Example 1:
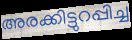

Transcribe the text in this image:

അരക്കിട്ടുറപ്പിച്ച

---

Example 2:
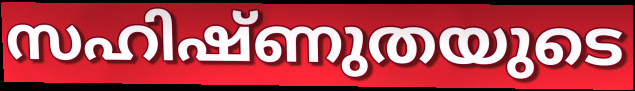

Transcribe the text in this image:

സഹിഷ്ണുതയുടെ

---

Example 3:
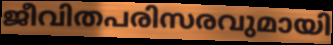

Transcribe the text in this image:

ജീവിതപരിസരവുമായി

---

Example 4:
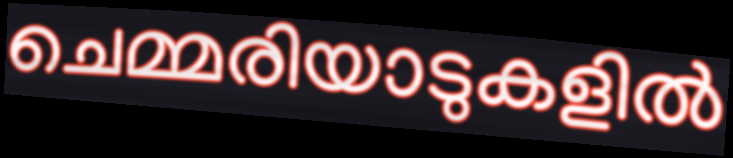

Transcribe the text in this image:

ചെമ്മരിയാടുകളിൽ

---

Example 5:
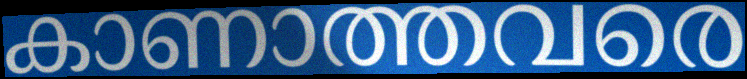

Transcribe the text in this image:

കാണാത്തവരെ